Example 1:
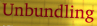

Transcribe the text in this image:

Unbundling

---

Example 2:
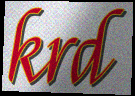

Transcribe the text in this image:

krd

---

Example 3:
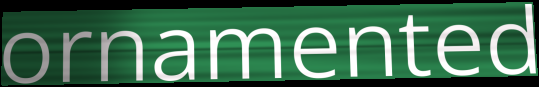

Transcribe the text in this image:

ornamented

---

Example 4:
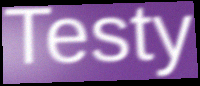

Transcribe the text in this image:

Testy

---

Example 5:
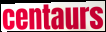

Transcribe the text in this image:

centaurs